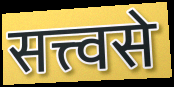
सत्त्वसे